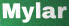
Mylar